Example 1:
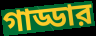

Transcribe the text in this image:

গাড্ডার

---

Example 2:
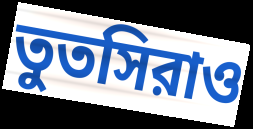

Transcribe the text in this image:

তুতসিরাও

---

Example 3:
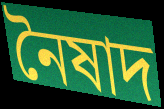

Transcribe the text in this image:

নৈষাদ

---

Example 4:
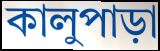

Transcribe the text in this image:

কালুপাড়া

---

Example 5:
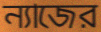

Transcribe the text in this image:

ন্যাজের